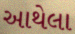
આથેલા